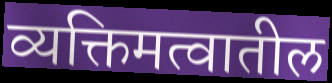
व्यक्तिमत्वातील